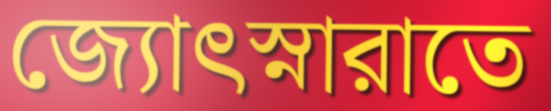
জ্যোৎস্নারাতে